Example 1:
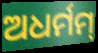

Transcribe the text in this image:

ଅଧର୍ମମ୍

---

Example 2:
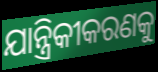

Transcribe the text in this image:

ଯାନ୍ତ୍ରିକୀକରଣକୁ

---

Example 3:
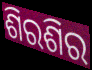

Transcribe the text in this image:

ଶିରଶିର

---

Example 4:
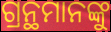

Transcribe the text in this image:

ଗ୍ରନ୍ଥମାନଙ୍କୁ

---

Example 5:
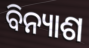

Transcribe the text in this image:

ବିନ୍ୟାଶ